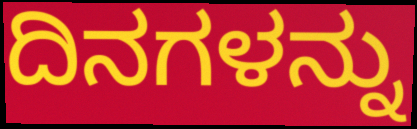
ದಿನಗಳನ್ನು